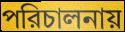
পরিচালনায়